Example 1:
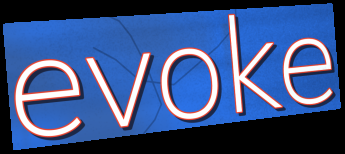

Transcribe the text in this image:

evoke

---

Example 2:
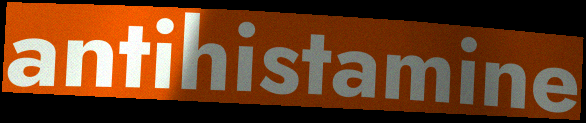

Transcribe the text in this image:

antihistamine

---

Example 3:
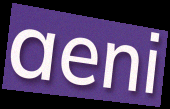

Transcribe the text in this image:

aeni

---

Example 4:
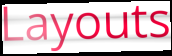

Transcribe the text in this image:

Layouts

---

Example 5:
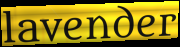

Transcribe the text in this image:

lavender